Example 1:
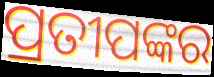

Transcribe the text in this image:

ପ୍ରତୀପଙ୍କର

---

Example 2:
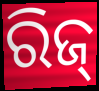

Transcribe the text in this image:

ରିଜ୍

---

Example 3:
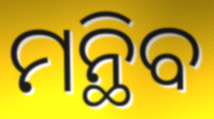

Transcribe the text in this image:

ମନ୍ଥିବ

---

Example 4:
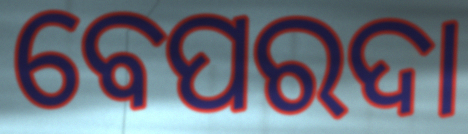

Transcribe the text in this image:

ବେପରଦା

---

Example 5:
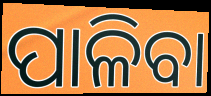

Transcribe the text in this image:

ପାଳିବା